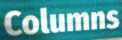
Columns